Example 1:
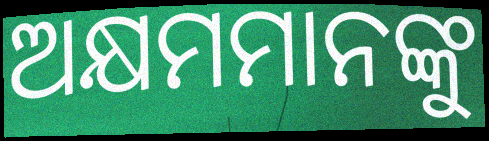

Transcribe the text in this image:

ଅକ୍ଷମମାନଙ୍କୁ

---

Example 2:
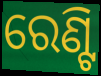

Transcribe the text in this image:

ରେଣ୍ଟି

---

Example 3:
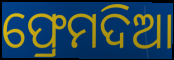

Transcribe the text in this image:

ଫ୍ରେମଦିଆ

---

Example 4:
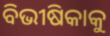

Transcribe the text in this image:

ବିଭୀଷିକାକୁ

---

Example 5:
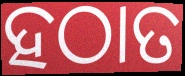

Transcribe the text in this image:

ହଠାତ